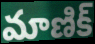
మాణిక్